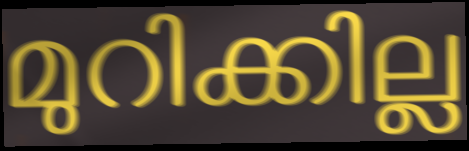
മുറിക്കില്ല